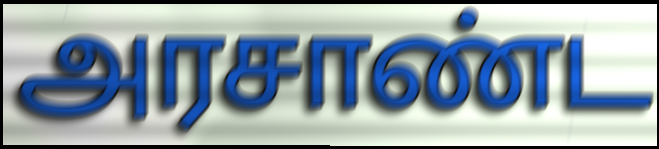
அரசாண்ட